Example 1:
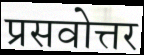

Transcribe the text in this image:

प्रसवोत्तर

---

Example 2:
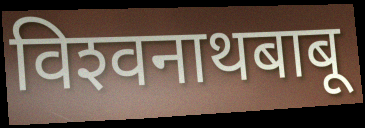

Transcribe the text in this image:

विश्‍वनाथबाबू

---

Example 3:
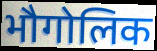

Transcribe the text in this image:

भौगोलिक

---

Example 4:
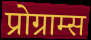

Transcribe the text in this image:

प्रोग्राम्स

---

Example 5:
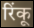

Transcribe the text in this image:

रिंकू